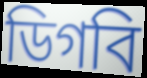
ডিগবি